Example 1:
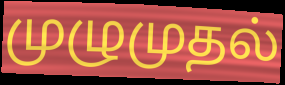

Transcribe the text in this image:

முழுமுதல்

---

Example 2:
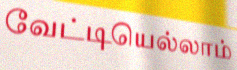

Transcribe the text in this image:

வேட்டியெல்லாம்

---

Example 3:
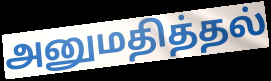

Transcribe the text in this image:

அனுமதித்தல்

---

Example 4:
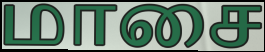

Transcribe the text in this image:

மாசை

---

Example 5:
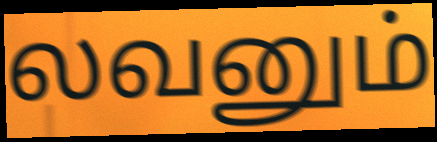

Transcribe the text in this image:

லவனும்